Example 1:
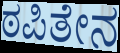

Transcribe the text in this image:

ಠಪಿತೇನ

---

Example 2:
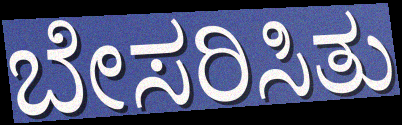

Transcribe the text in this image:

ಬೇಸರಿಸಿತು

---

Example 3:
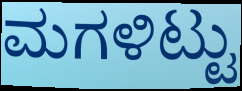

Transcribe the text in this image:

ಮಗಳಿಟ್ಟು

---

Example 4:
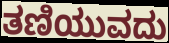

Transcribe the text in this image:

ತಣಿಯುವದು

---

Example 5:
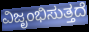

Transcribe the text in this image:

ವಿಜೃಂಭಿಸುತ್ತದೆ